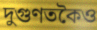
দুগুণতকৈও